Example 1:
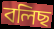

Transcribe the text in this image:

বলিছ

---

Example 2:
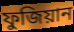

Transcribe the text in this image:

ফুজিয়ান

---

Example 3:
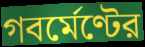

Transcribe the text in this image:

গবর্মেণ্টের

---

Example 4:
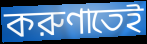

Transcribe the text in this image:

করুণাতেই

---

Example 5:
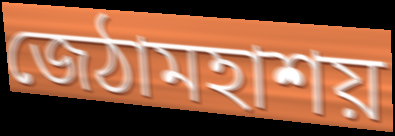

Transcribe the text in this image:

জেঠামহাশয়